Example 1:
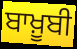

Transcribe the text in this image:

ਬਾਖ਼ੂਬੀ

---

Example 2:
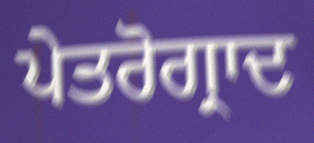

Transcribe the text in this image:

ਪੇਤਰੋਗ੍ਰਾਦ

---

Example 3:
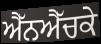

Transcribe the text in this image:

ਐੱਨਐੱਚਕੇ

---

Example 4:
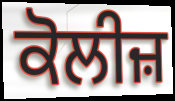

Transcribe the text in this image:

ਕੋਲੀਜ਼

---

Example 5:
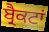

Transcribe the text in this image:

ਬ੍ਰੈਕਟਾਂ